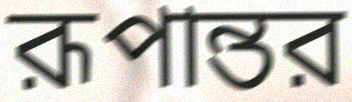
রূপান্তর